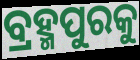
ବ୍ରହ୍ମପୁରକୁ